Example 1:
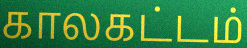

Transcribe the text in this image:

காலகட்டம்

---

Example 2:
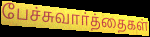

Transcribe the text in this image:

பேச்சுவார்த்தைகள்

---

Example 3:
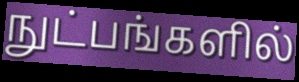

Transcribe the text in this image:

நுட்பங்களில்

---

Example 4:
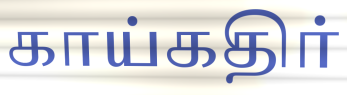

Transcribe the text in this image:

காய்கதிர்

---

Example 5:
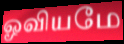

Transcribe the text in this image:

ஓவியமே